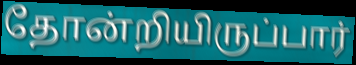
தோன்றியிருப்பார்